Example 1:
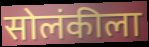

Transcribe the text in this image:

सोलंकीला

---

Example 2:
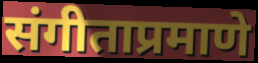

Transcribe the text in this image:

संगीताप्रमाणे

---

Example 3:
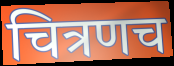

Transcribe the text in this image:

चित्रणच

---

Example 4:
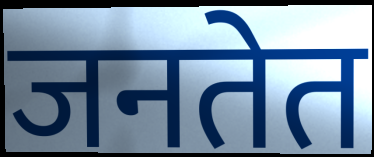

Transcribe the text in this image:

जनतेत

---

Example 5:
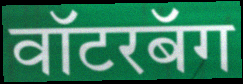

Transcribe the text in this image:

वॉटरबॅग